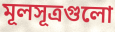
মূলসূত্রগুলো